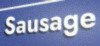
Sausage